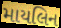
માયલિન